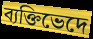
ব্যক্তিভেদে